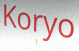
Koryo